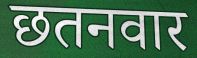
छतनवार